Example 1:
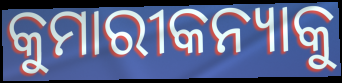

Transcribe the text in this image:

କୁମାରୀକନ୍ୟାକୁ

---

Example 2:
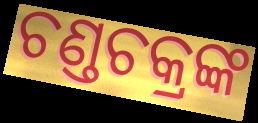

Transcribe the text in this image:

ଚଣ୍ଡଚକ୍ରଙ୍କ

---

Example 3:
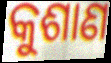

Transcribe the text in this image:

କୁଶାଣ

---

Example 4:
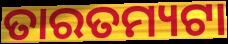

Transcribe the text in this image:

ତାରତମ୍ୟଟା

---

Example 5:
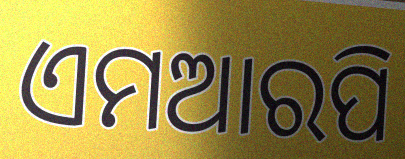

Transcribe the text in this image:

ଏମଆରପି